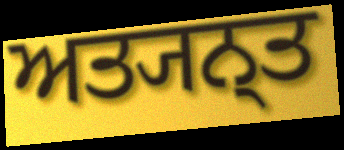
ਅਤ੍ਯਨ੍ਤ